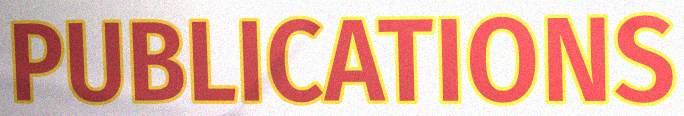
PUBLICATIONS